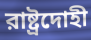
রাষ্ট্রদোহী